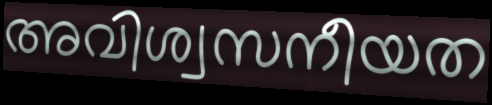
അവിശ്വസനീയത